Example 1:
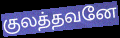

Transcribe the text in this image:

குலத்தவனே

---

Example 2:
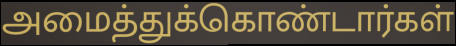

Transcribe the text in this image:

அமைத்துக்கொண்டார்கள்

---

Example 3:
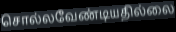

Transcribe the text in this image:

சொல்லவேண்டியதில்லை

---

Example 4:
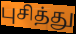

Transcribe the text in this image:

புசித்து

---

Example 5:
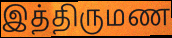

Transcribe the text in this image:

இத்திருமண